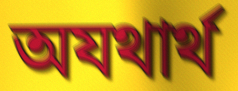
অযথার্থ